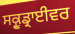
ਸਕ੍ਰੂਡ੍ਰਾਈਵਰ